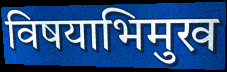
विषयाभिमुख